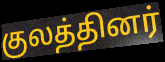
குலத்தினர்